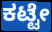
ಕಟ್ಟೇ